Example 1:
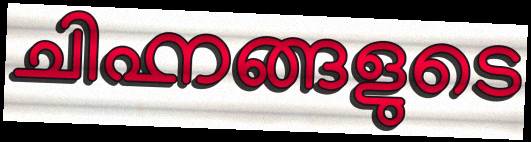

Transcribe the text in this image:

ചിഹ്നങ്ങളുടെ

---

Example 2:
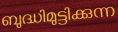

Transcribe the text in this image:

ബുദ്ധിമുട്ടിക്കുന്ന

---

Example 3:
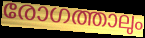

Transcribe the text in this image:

രോഗത്താലും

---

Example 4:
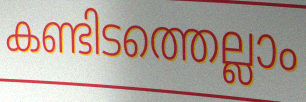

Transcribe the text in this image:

കണ്ടിടത്തെല്ലാം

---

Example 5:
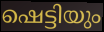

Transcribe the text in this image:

ഷെട്ടിയും